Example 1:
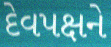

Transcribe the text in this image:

દેવપક્ષને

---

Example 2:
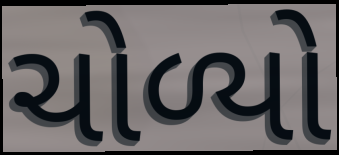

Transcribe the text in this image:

ચોળ્યો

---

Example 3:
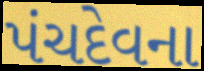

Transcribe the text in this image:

પંચદેવના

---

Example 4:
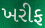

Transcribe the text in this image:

ખરીફ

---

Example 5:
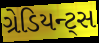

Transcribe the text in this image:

ગ્રેડિયન્ટ્સ